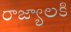
రాజ్యాలకి